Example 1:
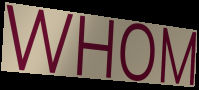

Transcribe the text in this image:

WHOM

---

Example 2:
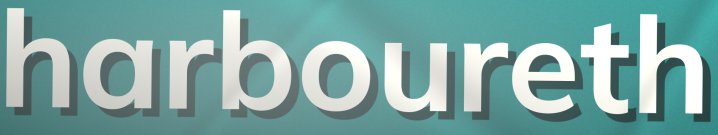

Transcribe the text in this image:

harboureth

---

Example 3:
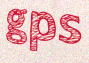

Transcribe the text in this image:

gps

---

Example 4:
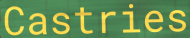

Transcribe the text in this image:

Castries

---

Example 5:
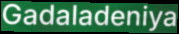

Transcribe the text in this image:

Gadaladeniya